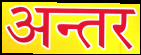
अन्‍तर